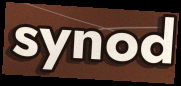
synod